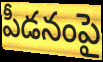
పీడనంపై